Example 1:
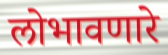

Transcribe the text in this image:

लोभावणारे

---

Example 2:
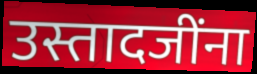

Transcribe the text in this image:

उस्तादजींना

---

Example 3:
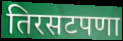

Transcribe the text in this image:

तिरसटपणा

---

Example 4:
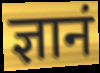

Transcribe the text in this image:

ज्ञानं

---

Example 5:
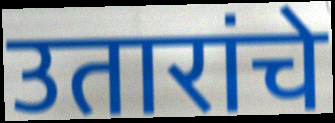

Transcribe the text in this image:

उतारांचे